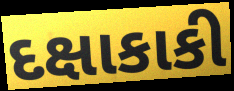
દક્ષાકાકી